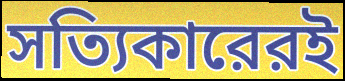
সত্যিকারেরই